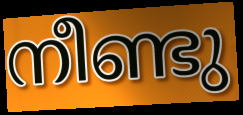
നീണ്ടു